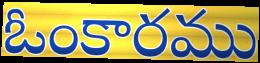
ఓంకారము